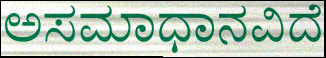
ಅಸಮಾಧಾನವಿದೆ